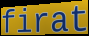
firat